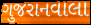
ગુજરાનવાલા